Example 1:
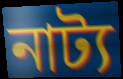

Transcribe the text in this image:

নাট্য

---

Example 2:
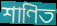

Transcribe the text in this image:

শাণিত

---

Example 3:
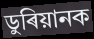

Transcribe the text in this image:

ডুৰিয়ানক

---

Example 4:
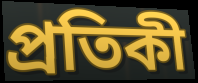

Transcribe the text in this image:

প্ৰতিকী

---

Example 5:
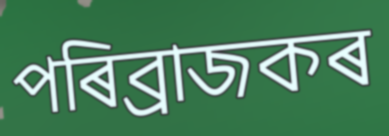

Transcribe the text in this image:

পৰিব্ৰাজকৰ